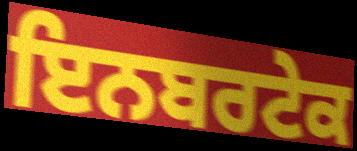
ਇਨਬਰਟੇਕ